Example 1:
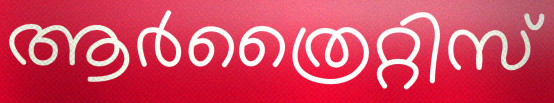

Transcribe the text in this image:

ആർത്രൈറ്റിസ്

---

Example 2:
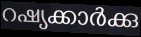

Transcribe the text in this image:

റഷ്യക്കാർക്കു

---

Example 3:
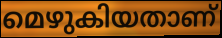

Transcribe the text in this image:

മെഴുകിയതാണ്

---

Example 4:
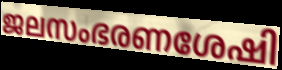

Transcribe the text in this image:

ജലസംഭരണശേഷി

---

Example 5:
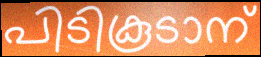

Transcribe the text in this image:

പിടികൂടാന്